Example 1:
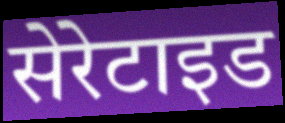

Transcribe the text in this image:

सेरेटाइड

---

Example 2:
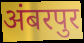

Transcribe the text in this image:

अंबरपुर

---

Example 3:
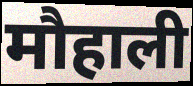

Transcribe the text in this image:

मौहाली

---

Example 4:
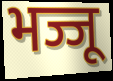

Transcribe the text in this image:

भज्जू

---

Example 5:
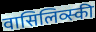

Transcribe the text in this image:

वासिलिव्स्की